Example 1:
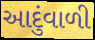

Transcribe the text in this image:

આદુંવાળી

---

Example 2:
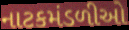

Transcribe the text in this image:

નાટકમંડળીઓ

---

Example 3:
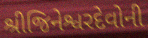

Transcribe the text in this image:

શ્રીજિનેશ્વરદેવોની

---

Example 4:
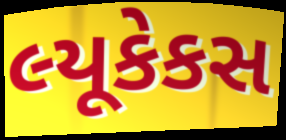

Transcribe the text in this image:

લ્યૂકેકસ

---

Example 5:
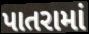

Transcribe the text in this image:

પાતરામાં